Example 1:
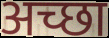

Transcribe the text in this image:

अच्‍छा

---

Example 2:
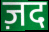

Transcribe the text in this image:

ज़द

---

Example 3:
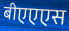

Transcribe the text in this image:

बीएएएस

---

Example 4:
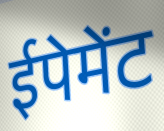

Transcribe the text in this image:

ईपेमेंट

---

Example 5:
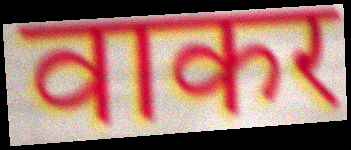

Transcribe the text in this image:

वाकर